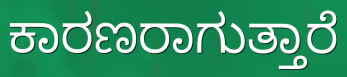
ಕಾರಣರಾಗುತ್ತಾರೆ